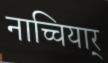
नाच्चियार्